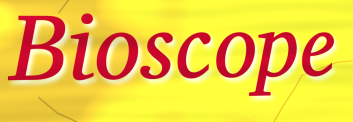
Bioscope